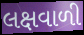
લક્ષવાળી